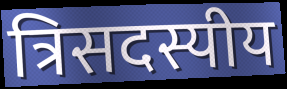
त्रिसदस्यीय